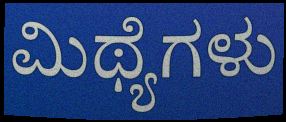
ಮಿಥ್ಯೆಗಳು